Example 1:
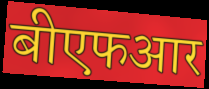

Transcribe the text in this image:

बीएफआर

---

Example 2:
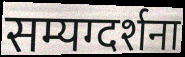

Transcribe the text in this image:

सम्यग्दर्शना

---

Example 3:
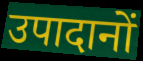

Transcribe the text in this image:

उपादानों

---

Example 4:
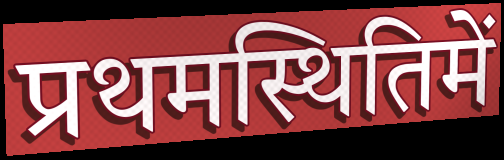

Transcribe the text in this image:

प्रथमस्थितिमें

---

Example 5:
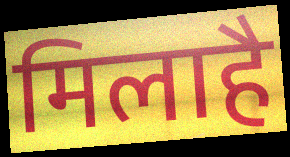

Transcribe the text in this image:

मिलाहै